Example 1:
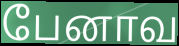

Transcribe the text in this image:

பேனாவ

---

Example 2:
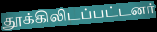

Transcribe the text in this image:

தூக்கிலிடப்பட்டனர்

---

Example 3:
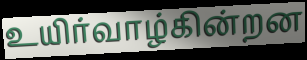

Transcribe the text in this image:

உயிர்வாழ்கின்றன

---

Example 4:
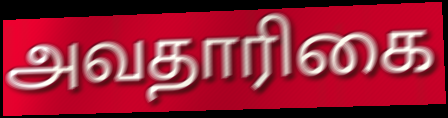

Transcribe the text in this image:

அவதாரிகை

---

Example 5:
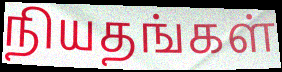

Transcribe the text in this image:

நியதங்கள்